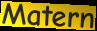
Matern